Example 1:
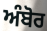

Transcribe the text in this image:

ਅੰਬੋਰ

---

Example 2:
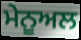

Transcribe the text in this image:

ਮੇਨੂਅਲ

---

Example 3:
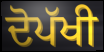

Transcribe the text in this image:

ਦੋਪੱਖੀ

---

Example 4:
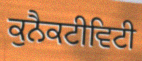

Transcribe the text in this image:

ਕੁਨੈਕਟੀਵਿਟੀ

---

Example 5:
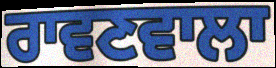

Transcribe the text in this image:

ਰਾਵਣਵਾਲਾ